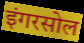
इंगरसोल